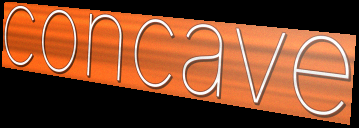
concave